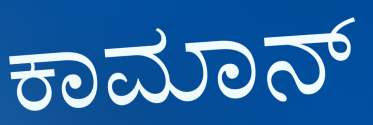
ಕಾಮಾನ್